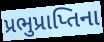
પ્રભુપ્રાપ્તિના